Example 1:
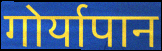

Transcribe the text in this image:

गोर्यापान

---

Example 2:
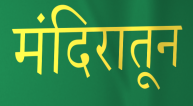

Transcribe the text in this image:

मंदिरातून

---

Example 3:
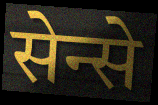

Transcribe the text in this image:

सेन्से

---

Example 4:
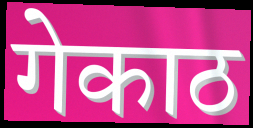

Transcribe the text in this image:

गेकाठ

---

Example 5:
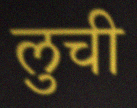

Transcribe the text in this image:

लुची